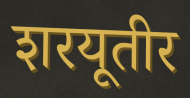
शरयूतीर